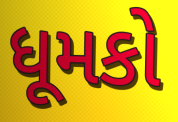
ધૂમકો